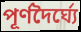
পূর্ণদৈর্ঘ্যে